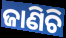
ଜାଣିଚି